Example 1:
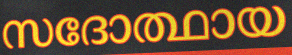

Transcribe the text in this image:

സദോത്ഥായ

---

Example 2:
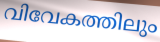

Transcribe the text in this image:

വിവേകത്തിലും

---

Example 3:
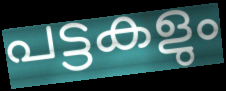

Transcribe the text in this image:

പട്ടകളും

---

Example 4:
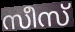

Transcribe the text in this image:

സീസ്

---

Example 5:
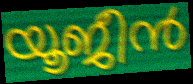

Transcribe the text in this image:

യൂജീൻ